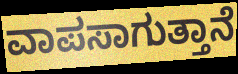
ವಾಪಸಾಗುತ್ತಾನೆ